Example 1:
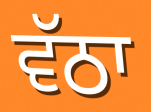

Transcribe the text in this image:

ਵੱਠਾ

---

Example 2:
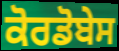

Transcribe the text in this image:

ਕੋਰਡੋਬੇਸ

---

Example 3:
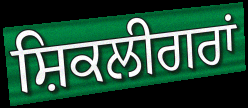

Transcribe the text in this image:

ਸ਼ਿਕਲੀਗਰਾਂ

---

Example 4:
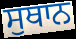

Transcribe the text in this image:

ਸੁਥਾਨ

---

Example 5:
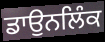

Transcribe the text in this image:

ਡਾਉਨਲਿੰਕ